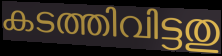
കടത്തിവിട്ടതു